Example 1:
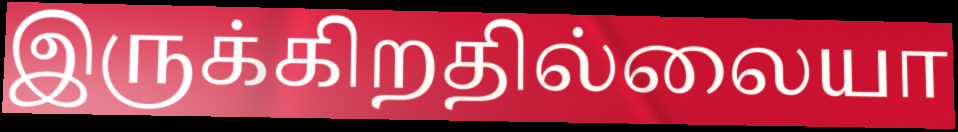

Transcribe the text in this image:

இருக்கிறதில்லையா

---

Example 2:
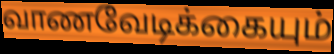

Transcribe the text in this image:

வாணவேடிக்கையும்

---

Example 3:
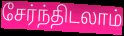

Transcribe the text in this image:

சேர்ந்திடலாம்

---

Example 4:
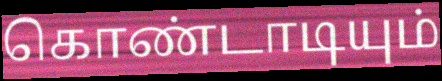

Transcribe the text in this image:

கொண்டாடியும்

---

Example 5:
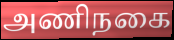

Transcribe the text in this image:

அணிநகை